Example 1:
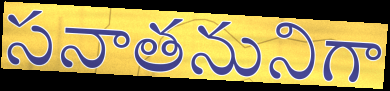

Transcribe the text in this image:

సనాతనునిగా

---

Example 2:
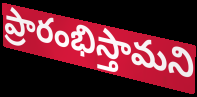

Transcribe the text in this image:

ప్రారంభిస్తామని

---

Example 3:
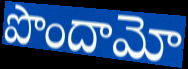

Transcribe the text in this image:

పొందామో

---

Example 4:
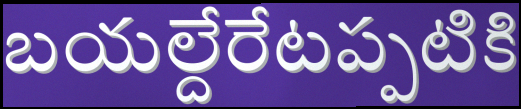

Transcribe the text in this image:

బయల్దేరేటప్పటికి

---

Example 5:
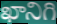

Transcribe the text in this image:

ఖానిగి